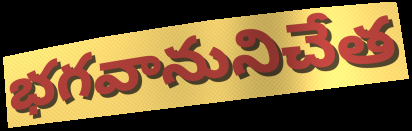
భగవానునిచేత